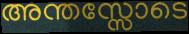
അന്തസ്സോടെ